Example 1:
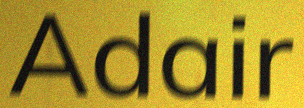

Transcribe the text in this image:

Adair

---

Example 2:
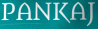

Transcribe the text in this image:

PANKAJ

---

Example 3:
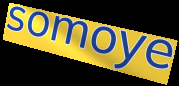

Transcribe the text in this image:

somoye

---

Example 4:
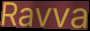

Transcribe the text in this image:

Ravva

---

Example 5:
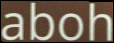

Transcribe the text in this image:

aboh